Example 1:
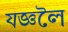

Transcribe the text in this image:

যজ্ঞলৈ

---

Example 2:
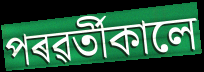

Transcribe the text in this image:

পৰৱৰ্তীকালে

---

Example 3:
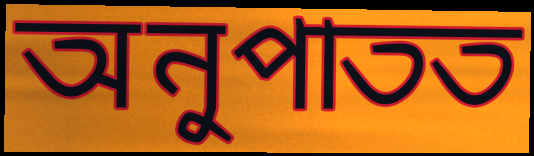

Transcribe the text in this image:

অনুপাতত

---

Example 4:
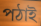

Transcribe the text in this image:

পঠাই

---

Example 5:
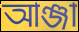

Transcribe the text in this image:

আঞ্জা